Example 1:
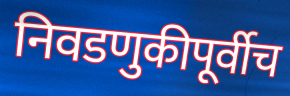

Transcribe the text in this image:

निवडणुकीपूर्वीच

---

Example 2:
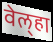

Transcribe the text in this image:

वेल्हा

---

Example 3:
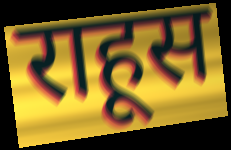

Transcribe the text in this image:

राहूस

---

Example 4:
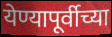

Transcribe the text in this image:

येण्यापूर्वीच्या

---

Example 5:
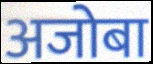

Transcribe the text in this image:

अजोबा